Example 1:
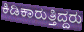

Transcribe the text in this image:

ಕಿಡಿಕಾರುತ್ತಿದ್ದರು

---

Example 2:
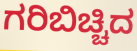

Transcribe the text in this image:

ಗರಿಬಿಚ್ಚಿದ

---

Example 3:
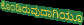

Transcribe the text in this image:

ಕೊಂಡಿರುವುದಾಗಿಯೂ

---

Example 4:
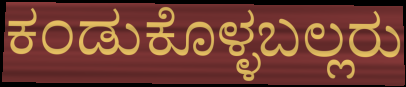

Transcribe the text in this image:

ಕಂಡುಕೊಳ್ಳಬಲ್ಲರು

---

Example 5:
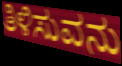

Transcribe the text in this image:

ತಿಳಿಸುವನು